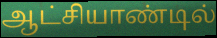
ஆட்சியாண்டில்